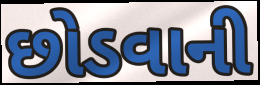
છોડવાની